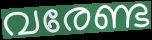
വരേണ്ട